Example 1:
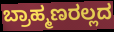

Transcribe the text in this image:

ಬ್ರಾಹ್ಮಣರಲ್ಲದ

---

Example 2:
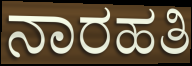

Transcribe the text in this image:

ನಾರಹತಿ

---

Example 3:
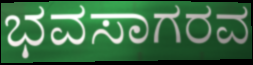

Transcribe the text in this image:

ಭವಸಾಗರವ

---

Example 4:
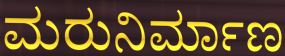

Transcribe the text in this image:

ಮರುನಿರ್ಮಾಣ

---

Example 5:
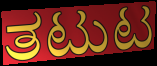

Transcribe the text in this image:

ತಟುಟ